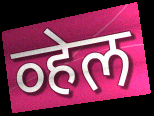
व्हेल